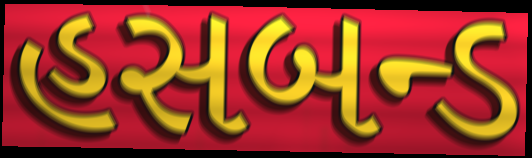
હસબન્ડ